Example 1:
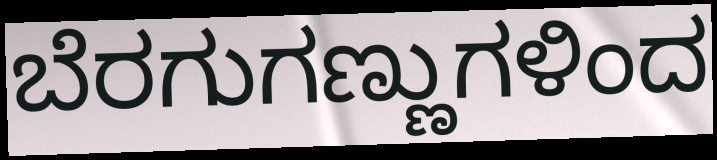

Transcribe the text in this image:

ಬೆರಗುಗಣ್ಣುಗಳಿಂದ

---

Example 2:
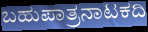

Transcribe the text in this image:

ಬಹುಪಾತ್ರನಾಟಕದಿ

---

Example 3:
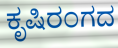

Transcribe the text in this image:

ಕೃಷಿರಂಗದ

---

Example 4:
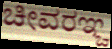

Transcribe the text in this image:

ಚೀವರಞ್ಚ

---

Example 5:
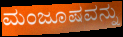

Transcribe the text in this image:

ಮಂಜೂಷವನ್ನು